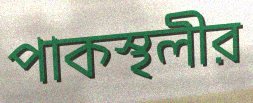
পাকস্থলীর